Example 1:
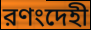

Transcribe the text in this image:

রণংদেহী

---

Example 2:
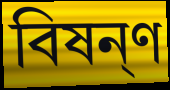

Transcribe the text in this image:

বিষন্ণ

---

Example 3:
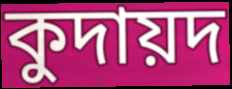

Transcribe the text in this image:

কুদায়দ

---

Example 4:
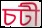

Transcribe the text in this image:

চটী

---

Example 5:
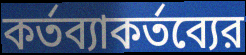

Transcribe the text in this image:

কর্তব্যাকর্তব্যের